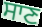
ਸਾਣ